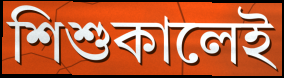
শিশুকালেই